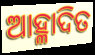
ଆହ୍ଳାଦିତ